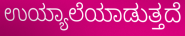
ಉಯ್ಯಾಲೆಯಾಡುತ್ತದೆ